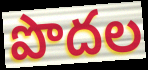
పొదల